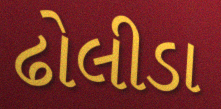
ઢોલીડા